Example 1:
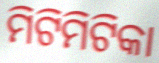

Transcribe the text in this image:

ମିଟିମିଟିକା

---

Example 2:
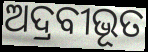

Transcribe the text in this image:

ଅଦ୍ରବୀଭୂତ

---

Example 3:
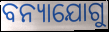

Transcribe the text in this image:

ବନ୍ୟାଯୋଗୁ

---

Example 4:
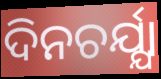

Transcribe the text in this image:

ଦିନଚର୍ଯ୍ଯା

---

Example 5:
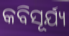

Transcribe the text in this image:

କବିସୂର୍ଯ୍ଯ